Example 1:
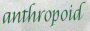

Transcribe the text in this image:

anthropoid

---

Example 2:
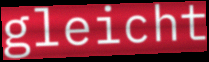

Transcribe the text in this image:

gleicht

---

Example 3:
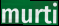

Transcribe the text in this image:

murti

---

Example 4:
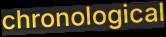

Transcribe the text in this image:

chronological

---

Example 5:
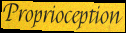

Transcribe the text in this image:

Proprioception